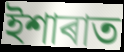
ইশাৰাত